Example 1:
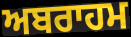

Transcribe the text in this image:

ਅਬਰਾਹਮ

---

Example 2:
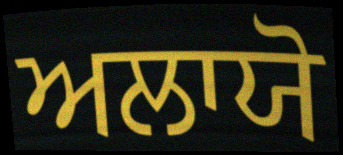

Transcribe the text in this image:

ਅਲਾਯੋ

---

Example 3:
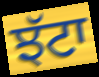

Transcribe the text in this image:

ਝੱਟਾ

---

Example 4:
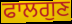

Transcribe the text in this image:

ਫਾਲਗੁਣ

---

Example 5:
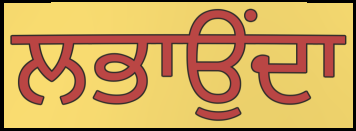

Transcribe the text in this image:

ਲਭਾਉਂਦਾ